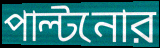
পাল্টনোর